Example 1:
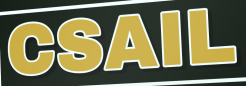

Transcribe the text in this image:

CSAIL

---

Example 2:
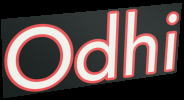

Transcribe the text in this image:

Odhi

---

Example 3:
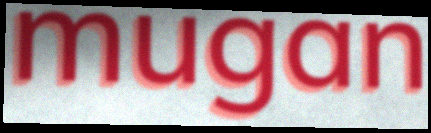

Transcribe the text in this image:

mugan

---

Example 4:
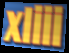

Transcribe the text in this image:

xliii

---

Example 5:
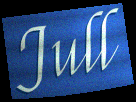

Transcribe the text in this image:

Jull